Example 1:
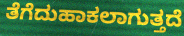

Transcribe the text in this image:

ತೆಗೆದುಹಾಕಲಾಗುತ್ತದೆ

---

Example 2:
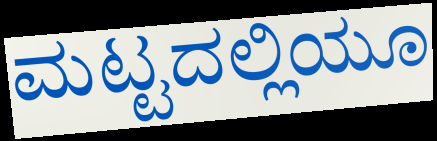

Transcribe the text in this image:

ಮಟ್ಟದಲ್ಲಿಯೂ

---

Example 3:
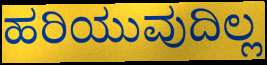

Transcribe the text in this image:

ಹರಿಯುವುದಿಲ್ಲ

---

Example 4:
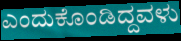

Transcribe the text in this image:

ಎಂದುಕೊಂಡಿದ್ದವಳು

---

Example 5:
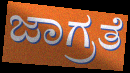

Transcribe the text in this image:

ಜಾಗ್ರತೆ